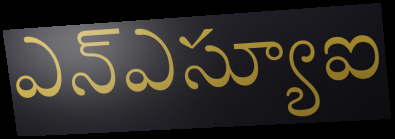
ఎన్ఎస్యూఐ